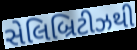
સેલિબ્રિટીઝથી